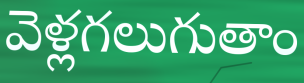
వెళ్లగలుగుతాం